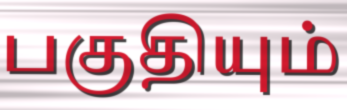
பகுதியும்